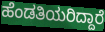
ಹೆಂಡತಿಯರಿದ್ದಾರೆ